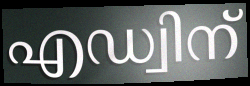
എഡ്വിന്